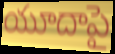
యూదాపై